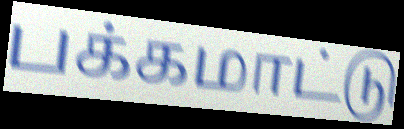
பக்கமாட்டு